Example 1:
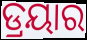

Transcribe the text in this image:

ଡ୍ରୟାର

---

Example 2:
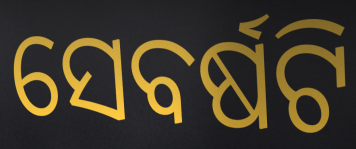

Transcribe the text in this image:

ସେବର୍ଷଟି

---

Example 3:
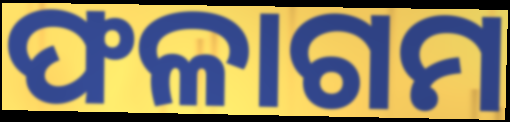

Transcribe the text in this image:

ଫଳାଗମ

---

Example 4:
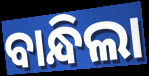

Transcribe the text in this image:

ବାନ୍ଧିଲା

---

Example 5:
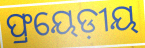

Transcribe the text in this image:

ଫ୍ରୟେଡ଼ୀୟ